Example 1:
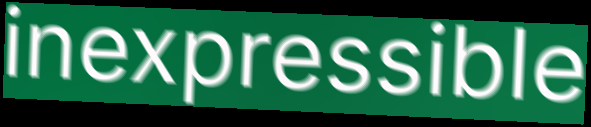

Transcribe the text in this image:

inexpressible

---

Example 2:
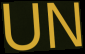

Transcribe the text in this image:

UN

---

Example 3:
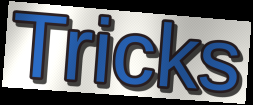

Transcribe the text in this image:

Tricks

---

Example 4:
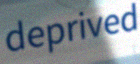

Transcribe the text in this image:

deprived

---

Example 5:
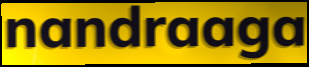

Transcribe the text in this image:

nandraaga